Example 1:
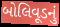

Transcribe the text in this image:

બોલિવૂડનું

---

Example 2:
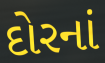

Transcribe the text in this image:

દોરનાં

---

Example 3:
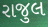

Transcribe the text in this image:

રાજુલ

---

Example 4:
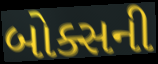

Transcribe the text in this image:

બોક્સની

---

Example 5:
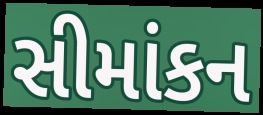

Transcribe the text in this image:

સીમાંકન